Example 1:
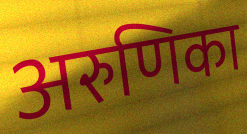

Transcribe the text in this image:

अरुणिका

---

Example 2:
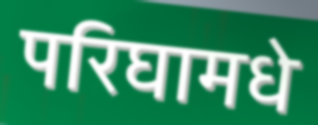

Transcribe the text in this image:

परिघामधे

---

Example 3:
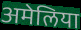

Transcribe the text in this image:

अमेलिया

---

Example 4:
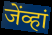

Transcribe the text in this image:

जेंव्हां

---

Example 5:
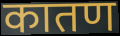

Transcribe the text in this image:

कातण